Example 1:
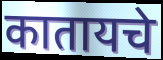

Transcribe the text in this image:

कातायचे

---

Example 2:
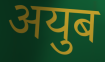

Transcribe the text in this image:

अयुब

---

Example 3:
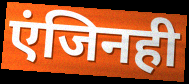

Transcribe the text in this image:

एंजिनही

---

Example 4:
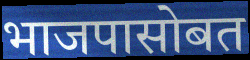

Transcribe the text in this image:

भाजपासोबत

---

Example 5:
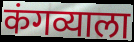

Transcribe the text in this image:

कंगव्याला